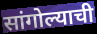
सांगोल्याची